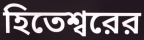
হিতেশ্বরের